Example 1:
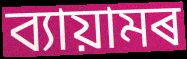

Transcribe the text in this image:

ব্যায়ামৰ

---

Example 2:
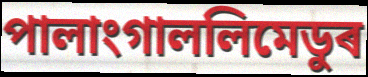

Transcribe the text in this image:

পালাংগাললিমেডুৰ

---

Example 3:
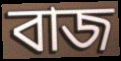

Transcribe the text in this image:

বাজ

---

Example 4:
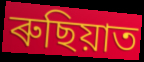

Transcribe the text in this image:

ৰুছিয়াত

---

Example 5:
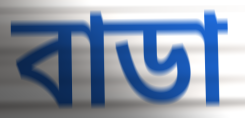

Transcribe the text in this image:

বাডা